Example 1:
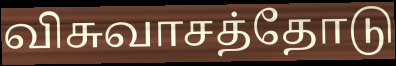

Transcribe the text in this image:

விசுவாசத்தோடு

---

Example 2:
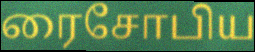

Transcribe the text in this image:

ரைசோபிய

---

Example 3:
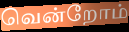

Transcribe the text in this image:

வென்றோம்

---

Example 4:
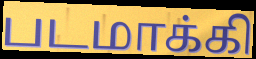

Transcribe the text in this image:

படமாக்கி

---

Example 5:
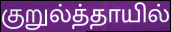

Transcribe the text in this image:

குறுல்த்தாயில்